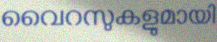
വൈറസുകളുമായി